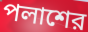
পলাশের